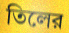
তিলের